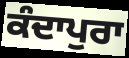
ਕੰਦਾਪੁਰਾ